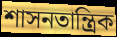
শাসনতান্ত্রিক